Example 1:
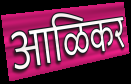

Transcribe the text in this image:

आळिकर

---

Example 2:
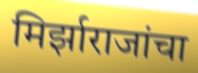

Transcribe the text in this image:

मिर्झाराजांचा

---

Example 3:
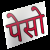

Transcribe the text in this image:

पेसो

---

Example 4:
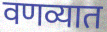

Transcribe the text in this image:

वणव्यात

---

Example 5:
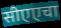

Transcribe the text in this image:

सीएएचा